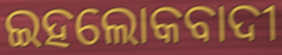
ଇହଲୋକବାଦୀ